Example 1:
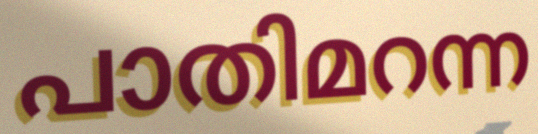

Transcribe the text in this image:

പാതിമറന്ന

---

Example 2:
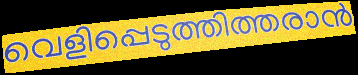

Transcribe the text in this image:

വെളിപ്പെടുത്തിത്തരാൻ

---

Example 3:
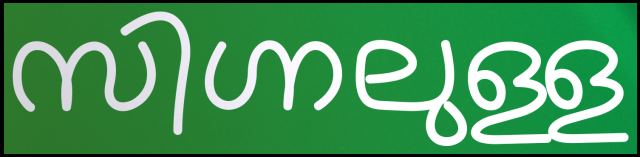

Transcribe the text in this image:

സിഗ്നലുള്ള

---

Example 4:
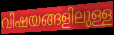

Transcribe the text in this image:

വിഷയങ്ങളിലുള്ള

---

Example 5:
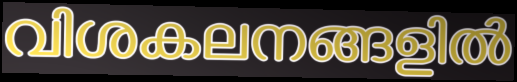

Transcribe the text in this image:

വിശകലനങ്ങളിൽ